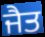
ਜੈਤ